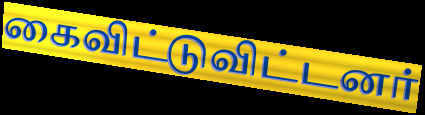
கைவிட்டுவிட்டனர்